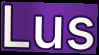
Lus